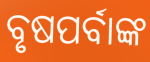
ବୃଷପର୍ବାଙ୍କ